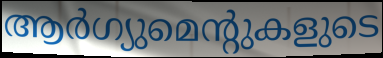
ആർഗ്യുമെന്റുകളുടെ